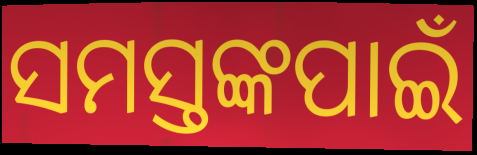
ସମସ୍ତଙ୍କପାଇଁ